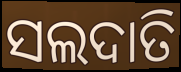
ସଲଦାତି